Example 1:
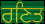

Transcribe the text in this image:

ਰਣਿਤ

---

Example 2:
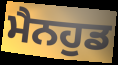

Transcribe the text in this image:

ਮੈਨਹੁਡ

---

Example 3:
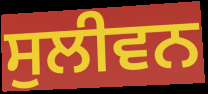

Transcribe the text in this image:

ਸੁਲੀਵਨ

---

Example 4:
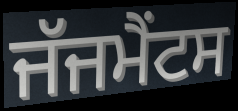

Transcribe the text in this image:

ਜੱਜਮੈਂਟਸ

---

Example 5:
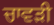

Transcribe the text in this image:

ਚਾਵੜੀ